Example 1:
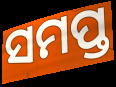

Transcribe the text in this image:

ସମପ୍ତ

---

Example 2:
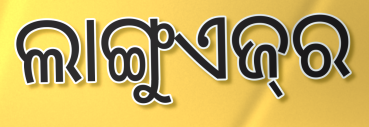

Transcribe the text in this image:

ଲାଙ୍ଗୁଏଜ୍‌ର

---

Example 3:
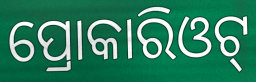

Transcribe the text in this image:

ପ୍ରୋକାରିଓଟ୍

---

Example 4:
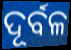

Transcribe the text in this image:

ଦୂର୍ବଳ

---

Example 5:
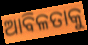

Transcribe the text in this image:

ଆବିଳତାକୁ